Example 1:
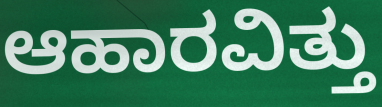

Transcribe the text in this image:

ಆಹಾರವಿತ್ತು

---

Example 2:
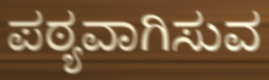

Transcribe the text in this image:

ಪಠ್ಯವಾಗಿಸುವ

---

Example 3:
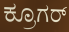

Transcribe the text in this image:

ಕ್ರೂಗರ್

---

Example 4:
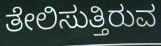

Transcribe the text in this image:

ತೇಲಿಸುತ್ತಿರುವ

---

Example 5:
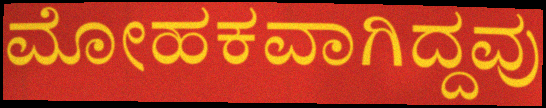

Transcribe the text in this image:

ಮೋಹಕವಾಗಿದ್ದವು